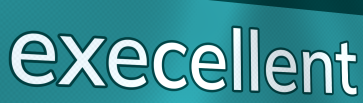
execellent